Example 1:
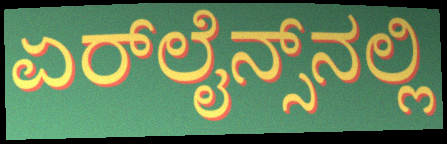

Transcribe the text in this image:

ಏರ್‌ಲೈನ್ಸ್‌ನಲ್ಲಿ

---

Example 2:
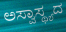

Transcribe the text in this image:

ಅಸ್ವಾಸ್ಥ್ಯದ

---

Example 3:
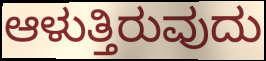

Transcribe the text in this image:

ಆಳುತ್ತಿರುವುದು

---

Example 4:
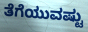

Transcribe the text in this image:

ತೆಗೆಯುವಷ್ಟು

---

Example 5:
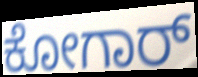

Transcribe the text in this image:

ಕೋಗಾರ್